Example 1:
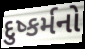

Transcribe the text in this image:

દુષ્કર્મનો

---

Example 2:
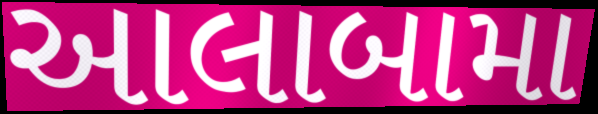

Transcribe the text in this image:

આલાબામા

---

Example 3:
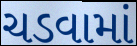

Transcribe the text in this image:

ચડવામાં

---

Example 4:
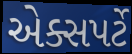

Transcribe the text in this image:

એક્સપર્ટે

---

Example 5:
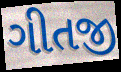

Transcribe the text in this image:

ગીતજી